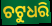
ଚଟୁଧରି